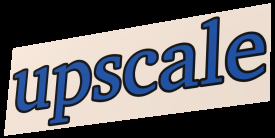
upscale